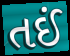
તઈં